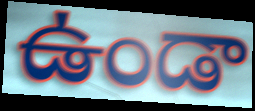
ఉండా